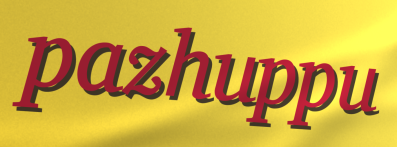
pazhuppu